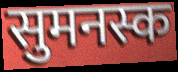
सुमनस्क